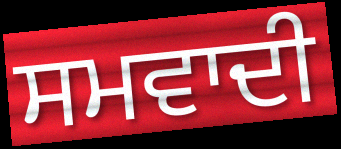
ਸਮਵਾਦੀ